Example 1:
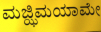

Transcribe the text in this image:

ಮಜ್ಝಿಮಯಾಮೇ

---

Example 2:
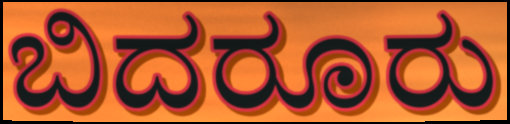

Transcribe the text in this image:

ಬಿದರೂರು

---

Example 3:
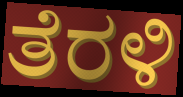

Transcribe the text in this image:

ತೆರಳಿ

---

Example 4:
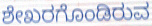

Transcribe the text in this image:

ಶೇಖರಗೊಂಡಿರುವ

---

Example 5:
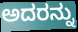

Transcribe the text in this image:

ಅದರನ್ನು